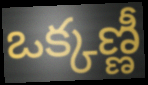
ఒక్కణ్ణీ